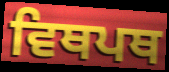
ਵਿਥਪਥ